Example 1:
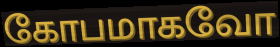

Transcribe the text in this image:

கோபமாகவோ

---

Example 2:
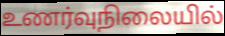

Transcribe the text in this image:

உணர்வுநிலையில்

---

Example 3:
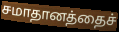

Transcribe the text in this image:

சமாதானத்தைச்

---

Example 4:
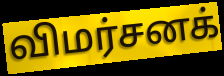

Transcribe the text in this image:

விமர்சனக்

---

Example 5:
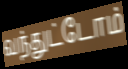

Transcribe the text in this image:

வந்துட்டோம்